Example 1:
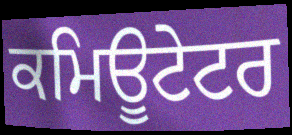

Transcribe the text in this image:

ਕਮਿਊਟੇਟਰ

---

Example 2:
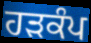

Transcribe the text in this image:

ਹੜਕੰਪ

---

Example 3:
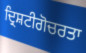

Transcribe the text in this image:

ਦ੍ਰਿਸ਼ਟੀਗੋਚਰਤਾ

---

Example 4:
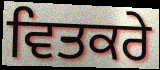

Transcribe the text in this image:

ਵਿਤਕਰੇ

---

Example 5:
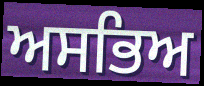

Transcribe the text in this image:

ਅਸਭਿਅ